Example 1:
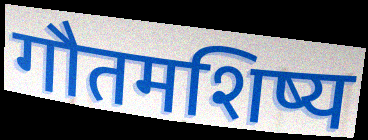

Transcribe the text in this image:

गौतमशिष्य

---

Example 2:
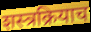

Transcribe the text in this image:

शस्त्रक्रियाच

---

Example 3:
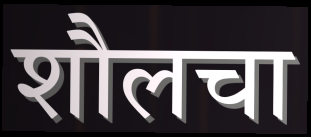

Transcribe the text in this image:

शौलचा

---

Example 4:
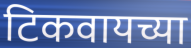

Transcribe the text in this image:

टिकवायच्या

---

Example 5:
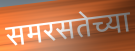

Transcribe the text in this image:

समरसतेच्या